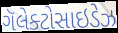
ગૅલેક્ટોસાઇડેઝ